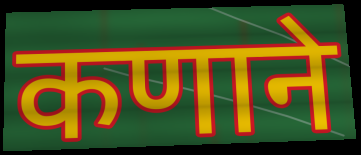
कणाने